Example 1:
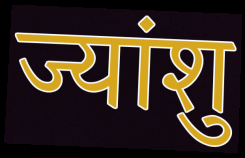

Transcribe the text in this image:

ज्यांशु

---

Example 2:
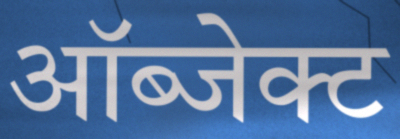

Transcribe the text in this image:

ऑब्‍जेक्‍ट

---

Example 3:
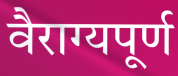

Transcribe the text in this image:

वैराग्यपूर्ण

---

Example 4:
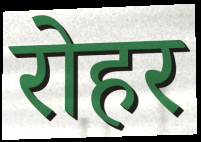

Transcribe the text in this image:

रोहर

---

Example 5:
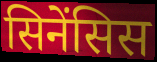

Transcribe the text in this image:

सिनेंसिस